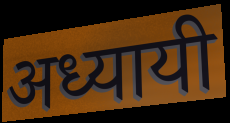
अध्यायी